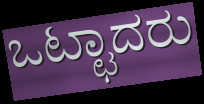
ಒಟ್ಟಾದರು